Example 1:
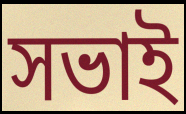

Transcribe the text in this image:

সভাই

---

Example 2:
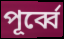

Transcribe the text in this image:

পূৰ্ব্বে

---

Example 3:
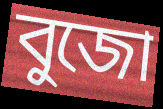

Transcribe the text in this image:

বুজো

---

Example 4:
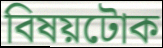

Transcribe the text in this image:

বিষয়টোক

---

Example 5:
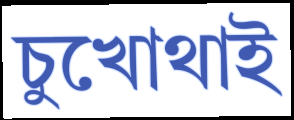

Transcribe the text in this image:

চুখোথাই